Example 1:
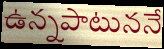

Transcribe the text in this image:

ఉన్నపాటుననే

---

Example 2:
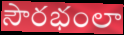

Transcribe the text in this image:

సౌరభంలా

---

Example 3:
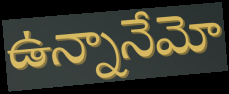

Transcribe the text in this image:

ఉన్నానేమో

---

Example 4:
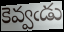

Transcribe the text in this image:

కెవ్వఁడు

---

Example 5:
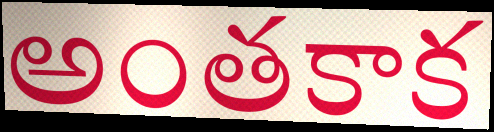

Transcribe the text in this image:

అంతకాక